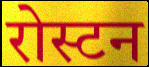
रोस्टन